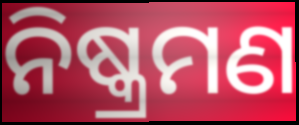
ନିଷ୍କ୍ରମଣ